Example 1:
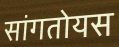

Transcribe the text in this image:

सांगतोयस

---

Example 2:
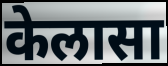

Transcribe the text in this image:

केलासा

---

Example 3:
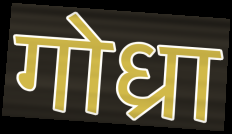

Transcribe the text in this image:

गोध्रा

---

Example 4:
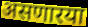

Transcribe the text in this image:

असणारया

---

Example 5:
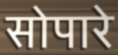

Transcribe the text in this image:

सोपारे